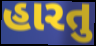
હારતુ